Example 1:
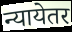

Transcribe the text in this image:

न्यायेतर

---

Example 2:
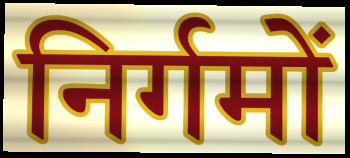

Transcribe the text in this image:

निर्गमों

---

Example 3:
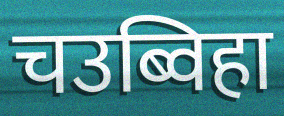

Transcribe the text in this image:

चउब्विहा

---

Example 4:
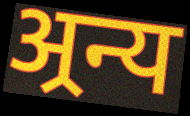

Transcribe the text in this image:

अ्रन्य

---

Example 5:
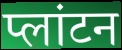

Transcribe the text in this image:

प्लांटन